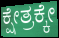
ಕ್ಷೇತ್ರಕ್ಕೇ